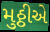
મુઠ્ઠીએ